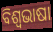
ବିଶ୍ୱଭାଷା